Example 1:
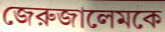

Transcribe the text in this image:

জেরুজালেমকে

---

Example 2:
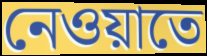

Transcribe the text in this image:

নেওয়াতে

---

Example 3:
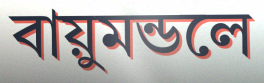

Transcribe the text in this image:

বায়ুমন্ডলে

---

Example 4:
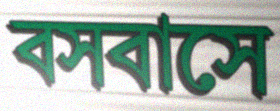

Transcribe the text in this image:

বসবাসে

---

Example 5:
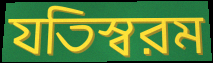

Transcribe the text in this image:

যতিস্বরম